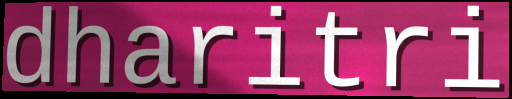
dharitri